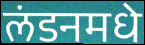
लंडनमधे